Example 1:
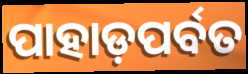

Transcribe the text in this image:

ପାହାଡ଼ପର୍ବତ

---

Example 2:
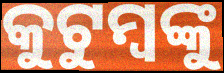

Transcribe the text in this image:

କୁଟୁମ୍ବଙ୍କୁ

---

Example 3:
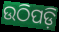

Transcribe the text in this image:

ଉଠିପଡ଼ି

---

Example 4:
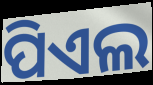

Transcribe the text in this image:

ପିଏଲ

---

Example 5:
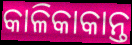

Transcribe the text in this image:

କାଳିକାକାନ୍ତ